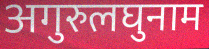
अगुरुलघुनाम